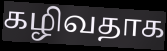
கழிவதாக